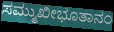
ಸಮ್ಮುಖೀಭೂತಾನಂ